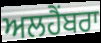
ਅਲਹੈਂਬਰਾ